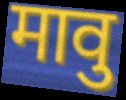
मावु